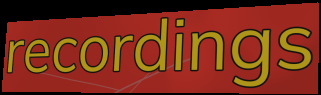
recordings